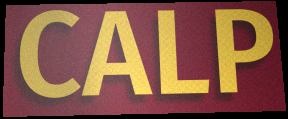
CALP